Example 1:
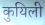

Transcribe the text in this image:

कुयिली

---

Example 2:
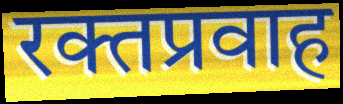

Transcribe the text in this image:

रक्तप्रवाह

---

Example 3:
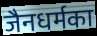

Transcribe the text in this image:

जैनधर्मका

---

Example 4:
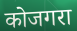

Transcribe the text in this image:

कोजगरा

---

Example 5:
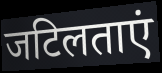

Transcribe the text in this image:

जटिलताएं